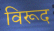
विरूद